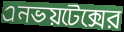
এনভয়টেক্সের